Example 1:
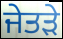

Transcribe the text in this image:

ਜੇਤੜੇ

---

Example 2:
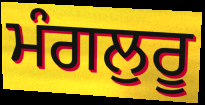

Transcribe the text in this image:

ਮੰਗਲੁਰੂ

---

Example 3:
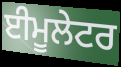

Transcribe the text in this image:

ਈਮੂਲੇਟਰ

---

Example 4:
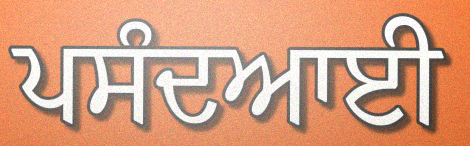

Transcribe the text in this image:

ਪਸੰਦਆਈ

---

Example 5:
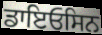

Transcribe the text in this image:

ਡਾਇਓਸਿਨ